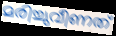
മരിച്ചുവീണത്